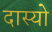
दास्यो